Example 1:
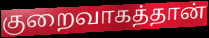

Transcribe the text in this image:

குறைவாகத்தான்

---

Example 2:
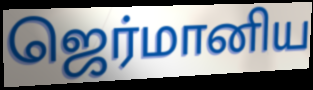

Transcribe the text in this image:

ஜெர்மானிய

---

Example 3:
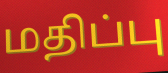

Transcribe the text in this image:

மதிப்பு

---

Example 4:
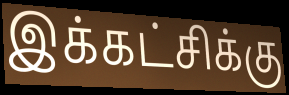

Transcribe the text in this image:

இக்கட்சிக்கு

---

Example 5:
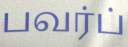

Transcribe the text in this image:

பவர்ப்